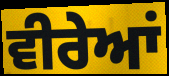
ਵੀਰੇਆਂ